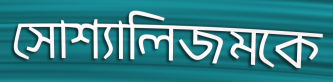
সোশ্যালিজমকে